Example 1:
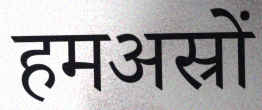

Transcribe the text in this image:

हमअस्रों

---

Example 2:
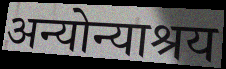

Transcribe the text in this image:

अन्योन्याश्रय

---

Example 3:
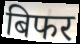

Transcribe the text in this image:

बिफर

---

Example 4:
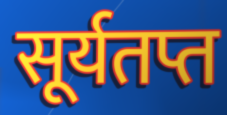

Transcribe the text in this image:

सूर्यतप्त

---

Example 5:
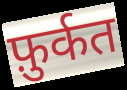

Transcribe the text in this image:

फ़ुर्कत